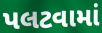
પલટવામાં